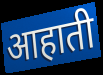
आहाती